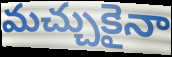
మచ్చుకైనా